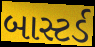
બાસ્ટર્ડ